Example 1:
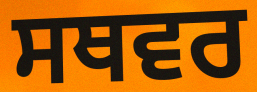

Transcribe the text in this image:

ਸਥਵਰ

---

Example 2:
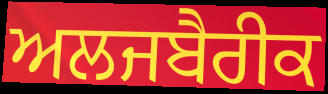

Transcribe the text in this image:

ਅਲਜਬੈਰੀਕ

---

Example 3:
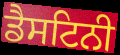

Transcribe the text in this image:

ਡੈਸਟਿਨੀ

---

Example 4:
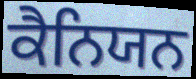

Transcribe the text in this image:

ਕੈਨਿਯਨ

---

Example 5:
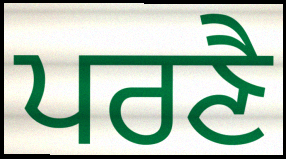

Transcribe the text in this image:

ਪਰਣੈ